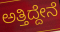
ಅತ್ತಿದ್ದೇನೆ